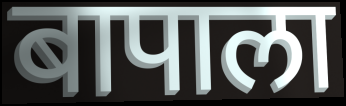
बापाला